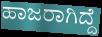
ಹಾಜರಾಗಿದ್ದೆ